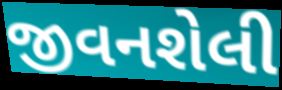
જીવનશેલી